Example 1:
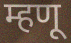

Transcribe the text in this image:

म्हणू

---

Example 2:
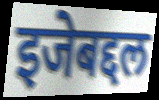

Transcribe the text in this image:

इजेबद्दल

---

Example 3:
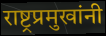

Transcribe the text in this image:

राष्ट्रप्रमुखांनी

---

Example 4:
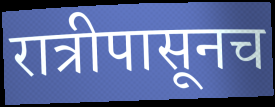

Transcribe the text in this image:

रात्रीपासूनच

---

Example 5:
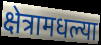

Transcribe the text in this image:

क्षेत्रामधल्या